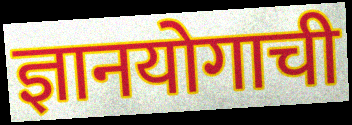
ज्ञानयोगाची